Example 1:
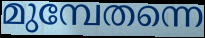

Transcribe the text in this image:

മുമ്പേതന്നെ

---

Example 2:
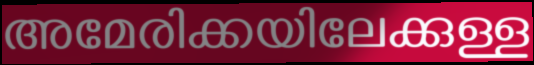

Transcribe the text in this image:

അമേരിക്കയിലേക്കുള്ള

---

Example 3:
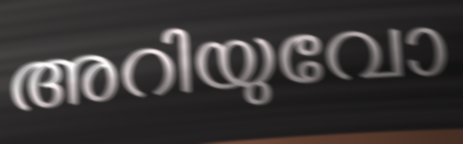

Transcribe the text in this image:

അറിയുവോ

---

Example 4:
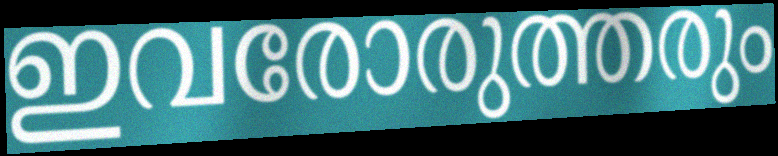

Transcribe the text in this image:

ഇവരോരുത്തരും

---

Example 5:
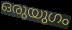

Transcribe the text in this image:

ഒരുയുഗം